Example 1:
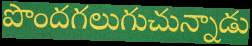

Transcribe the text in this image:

పొందగలుగుచున్నాడు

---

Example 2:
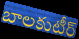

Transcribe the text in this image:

బాలకుటీర్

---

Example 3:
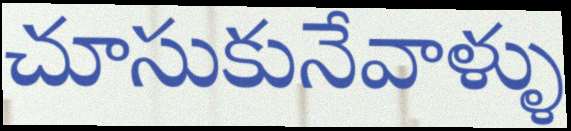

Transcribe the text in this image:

చూసుకునేవాళ్ళు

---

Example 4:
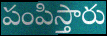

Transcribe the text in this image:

పంపిస్తారు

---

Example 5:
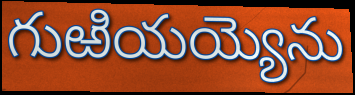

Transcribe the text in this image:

గుఱియయ్యెను